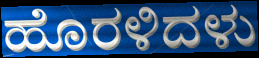
ಹೊರಳಿದಳು